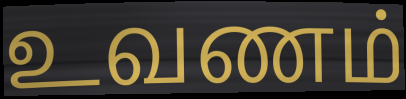
உவணம்